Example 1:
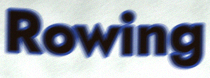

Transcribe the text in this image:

Rowing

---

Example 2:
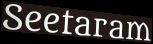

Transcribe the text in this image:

Seetaram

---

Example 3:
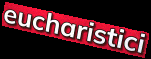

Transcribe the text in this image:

eucharistici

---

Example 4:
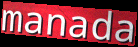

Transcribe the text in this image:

manada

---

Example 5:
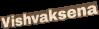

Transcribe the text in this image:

Vishvaksena